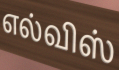
எல்விஸ்